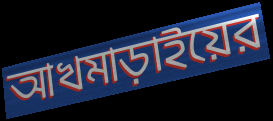
আখমাড়াইয়ের